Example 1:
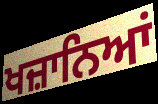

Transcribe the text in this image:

ਖਜ਼ਾਨਿਆਂ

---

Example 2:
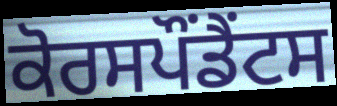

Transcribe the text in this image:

ਕੋਰਸਪੌਂਡੈਂਟਸ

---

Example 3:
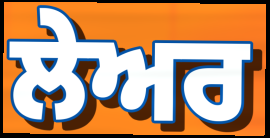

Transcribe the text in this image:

ਲੇਅਰ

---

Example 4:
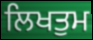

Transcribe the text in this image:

ਲਿਖਤੁਮ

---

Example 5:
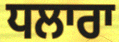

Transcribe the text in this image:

ਧਲਾਰਾ